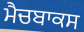
ਮੈਚਬਾਕਸ